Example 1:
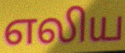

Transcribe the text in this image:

எலிய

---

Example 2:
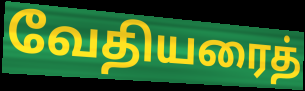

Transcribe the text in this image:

வேதியரைத்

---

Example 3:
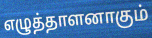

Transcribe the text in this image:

எழுத்தாளனாகும்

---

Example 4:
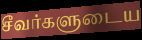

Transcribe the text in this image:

சீவர்களுடைய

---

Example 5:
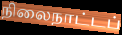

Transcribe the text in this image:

நிலைநாட்டப்